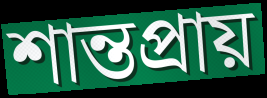
শান্তপ্রায়